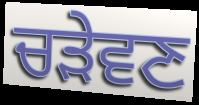
ਚੜੇਵਣ